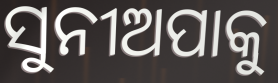
ସୁନୀଅପାକୁ